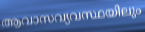
ആവാസവ്യവസ്ഥയിലും